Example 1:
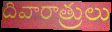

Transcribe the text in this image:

దివారాత్రులు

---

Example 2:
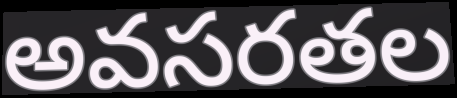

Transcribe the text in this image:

అవసరతల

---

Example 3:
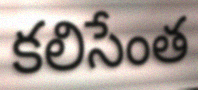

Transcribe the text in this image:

కలిసేంత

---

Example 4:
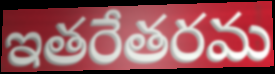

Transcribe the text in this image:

ఇతరేతరమ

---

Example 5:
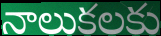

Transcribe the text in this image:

నాలుకలకు